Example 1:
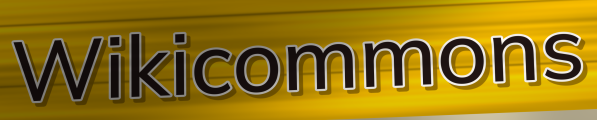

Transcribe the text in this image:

Wikicommons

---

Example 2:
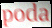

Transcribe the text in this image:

poda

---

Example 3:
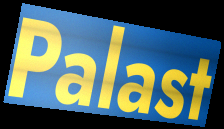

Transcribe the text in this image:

Palast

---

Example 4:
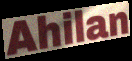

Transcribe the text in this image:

Ahilan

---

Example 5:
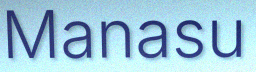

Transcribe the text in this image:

Manasu